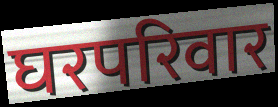
घरपरिवार